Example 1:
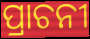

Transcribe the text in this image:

ପ୍ରାଚନୀ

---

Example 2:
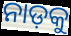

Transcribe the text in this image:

ନାଡ଼କୁ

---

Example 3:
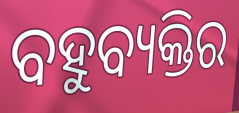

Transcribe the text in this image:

ବହୁବ୍ୟକ୍ତିର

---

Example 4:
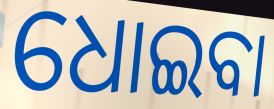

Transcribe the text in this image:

ଧୋଇବା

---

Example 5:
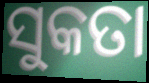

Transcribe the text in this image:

ସୁକତା